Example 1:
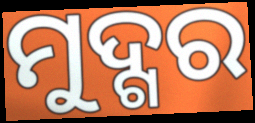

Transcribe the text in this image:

ମୁଦ୍ଗର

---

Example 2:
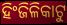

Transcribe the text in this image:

ହିଂଜିଳିକାଟୁ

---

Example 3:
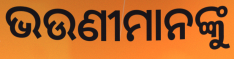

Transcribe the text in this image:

ଭଉଣୀମାନଙ୍କୁ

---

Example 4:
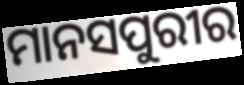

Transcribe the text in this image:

ମାନସପୁରୀର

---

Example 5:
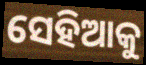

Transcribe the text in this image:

ସେହିଆକୁ